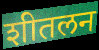
शीतलन